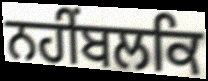
ਨਹੀਂਬਲਕਿ